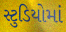
સ્ટુડિયોમાં